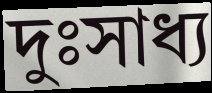
দুঃসাধ্য